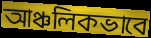
আঞ্চলিকভাবে